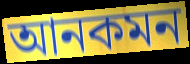
আনকমন